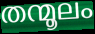
തന്മൂലം